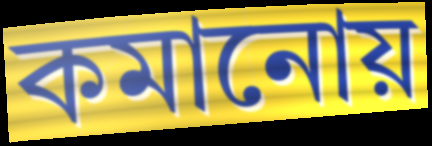
কমানোয়